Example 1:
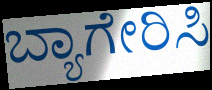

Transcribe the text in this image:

ಬ್ಯಾಗೇರಿಸಿ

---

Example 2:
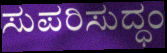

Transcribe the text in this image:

ಸುಪರಿಸುದ್ಧಂ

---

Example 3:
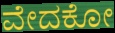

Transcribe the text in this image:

ವೇದಕೋ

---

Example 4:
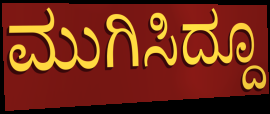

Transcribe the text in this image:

ಮುಗಿಸಿದ್ದೂ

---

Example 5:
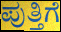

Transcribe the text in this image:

ಪುತ್ತಿಗೆ